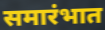
समारंभात